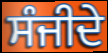
ਸੰਜੀਦੇ